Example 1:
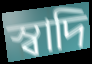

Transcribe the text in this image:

স্বাদি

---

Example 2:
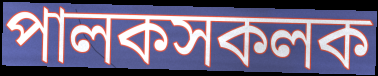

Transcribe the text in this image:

পালকসকলক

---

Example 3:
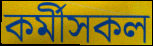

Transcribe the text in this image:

কৰ্মীসকল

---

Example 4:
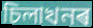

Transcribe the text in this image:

চিলাখনৰ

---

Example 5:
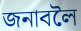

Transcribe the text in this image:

জনাবলৈ